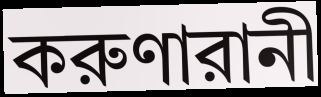
করুণারানী